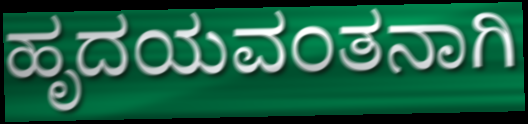
ಹೃದಯವಂತನಾಗಿ